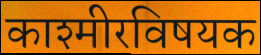
काश्मीरविषयक